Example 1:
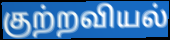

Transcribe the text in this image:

குற்றவியல்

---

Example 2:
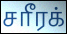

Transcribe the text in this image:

சரீரக்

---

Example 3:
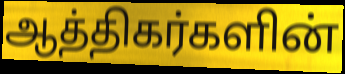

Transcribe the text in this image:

ஆத்திகர்களின்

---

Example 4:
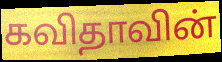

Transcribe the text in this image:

கவிதாவின்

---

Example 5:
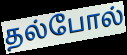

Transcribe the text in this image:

தல்போல்